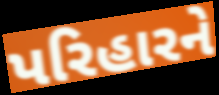
પરિહારને